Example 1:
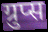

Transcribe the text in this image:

ग्रुप्स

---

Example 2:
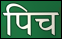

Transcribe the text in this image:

पिच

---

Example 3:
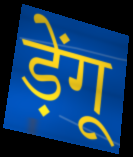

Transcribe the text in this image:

ड़ेंगू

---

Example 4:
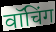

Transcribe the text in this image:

वॉचिंग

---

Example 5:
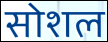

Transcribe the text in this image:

सोशल